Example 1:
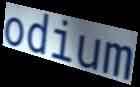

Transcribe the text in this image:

odium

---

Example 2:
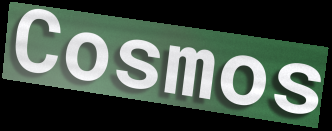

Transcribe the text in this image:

Cosmos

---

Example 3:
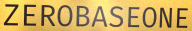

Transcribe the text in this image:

ZEROBASEONE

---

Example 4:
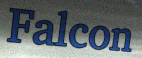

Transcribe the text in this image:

Falcon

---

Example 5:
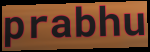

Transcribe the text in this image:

prabhu